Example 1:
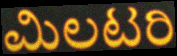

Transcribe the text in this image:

ಮಿಲಟರಿ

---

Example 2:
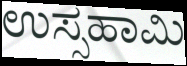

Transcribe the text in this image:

ಉಸ್ಸಹಾಮಿ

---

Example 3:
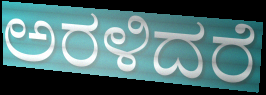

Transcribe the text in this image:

ಅರಳಿದರೆ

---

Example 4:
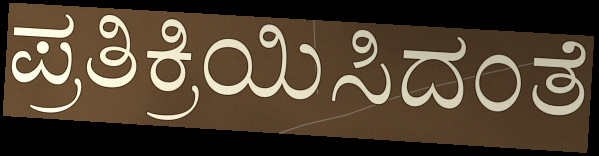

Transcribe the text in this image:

ಪ್ರತಿಕ್ರಿಯಿಸಿದಂತೆ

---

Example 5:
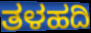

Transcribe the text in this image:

ತಳಹದಿ